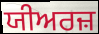
ਯੀਅਰਜ਼